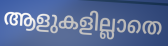
ആളുകളില്ലാതെ